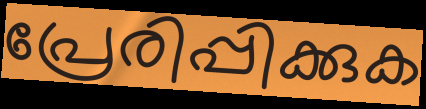
പ്രേരിപ്പിക്കുക